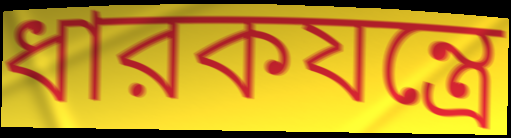
ধারকযন্ত্রে